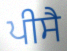
ਪੀਸੈ